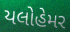
યલોહેમર